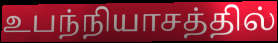
உபந்நியாசத்தில்